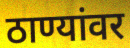
ठाण्यांवर